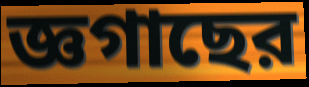
জ্ঞগাছের